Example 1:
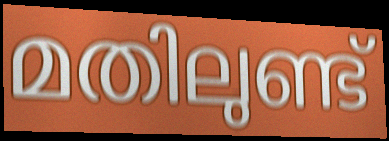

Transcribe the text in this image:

മതിലുണ്ട്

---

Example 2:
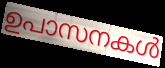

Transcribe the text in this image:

ഉപാസനകൾ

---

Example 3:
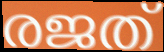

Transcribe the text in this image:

രജത്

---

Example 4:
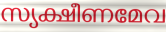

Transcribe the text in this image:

സ്യക്ഷീണമേവ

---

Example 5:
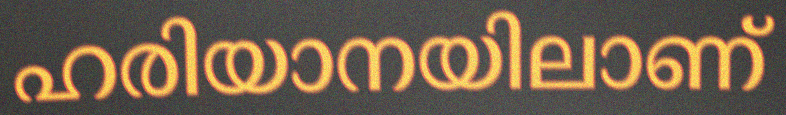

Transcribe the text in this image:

ഹരിയാനയിലാണ്